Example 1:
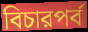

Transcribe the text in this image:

বিচারপর্ব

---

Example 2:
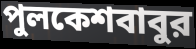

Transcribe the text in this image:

পুলকেশবাবুর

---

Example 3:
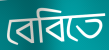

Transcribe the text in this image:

বেবিতে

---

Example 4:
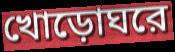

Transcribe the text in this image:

খোড়োঘরে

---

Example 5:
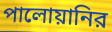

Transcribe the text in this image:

পালোয়ানির